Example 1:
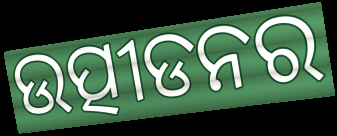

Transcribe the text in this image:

ଉତ୍ପୀଡନର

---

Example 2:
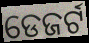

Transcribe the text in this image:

ଡେଜର୍ଟ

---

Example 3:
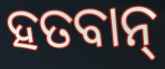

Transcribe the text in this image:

ହତବାନ୍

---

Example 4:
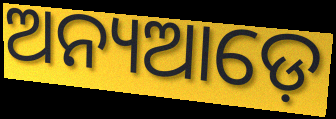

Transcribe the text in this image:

ଅନ୍ୟଆଡ଼େ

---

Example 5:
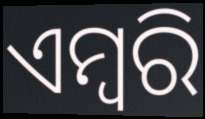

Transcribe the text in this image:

ଏମ୍ବରି